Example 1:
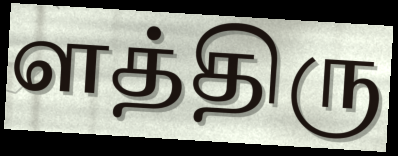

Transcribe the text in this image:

ளத்திரு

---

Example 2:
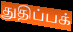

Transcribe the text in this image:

துதிப்பக்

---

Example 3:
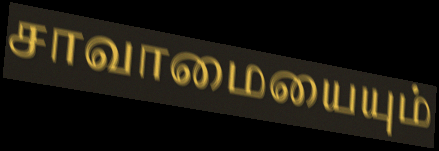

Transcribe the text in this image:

சாவாமையையும்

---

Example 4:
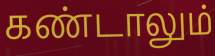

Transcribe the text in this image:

கண்டாலும்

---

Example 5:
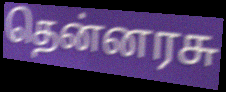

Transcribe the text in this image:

தென்னரசு